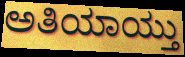
ಅತಿಯಾಯ್ತು